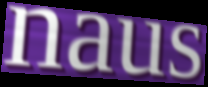
naus